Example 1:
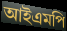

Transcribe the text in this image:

আইএমপি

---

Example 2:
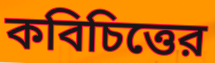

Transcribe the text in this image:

কবিচিত্তের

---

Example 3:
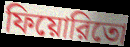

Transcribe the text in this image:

ফিয়োরিতো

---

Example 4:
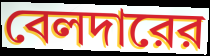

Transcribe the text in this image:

বেলদারের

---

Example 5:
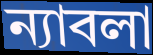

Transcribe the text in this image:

ন্যাবলা